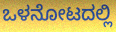
ಒಳನೋಟದಲ್ಲಿ